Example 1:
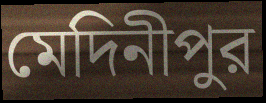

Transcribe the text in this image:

মেদিনীপুর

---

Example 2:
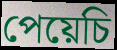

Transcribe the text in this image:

পেয়েচি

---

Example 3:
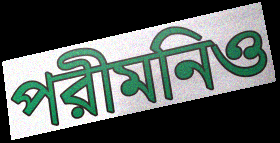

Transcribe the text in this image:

পরীমনিও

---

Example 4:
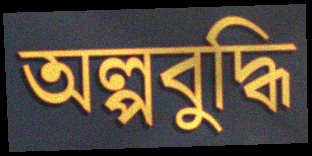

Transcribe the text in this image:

অল্পবুদ্ধি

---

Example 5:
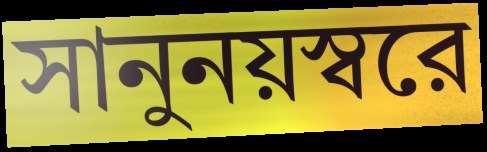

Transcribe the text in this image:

সানুনয়স্বরে